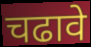
चढावे